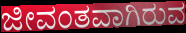
ಜೀವಂತವಾಗಿರುವ